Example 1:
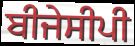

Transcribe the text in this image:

ਬੀਜੇਸੀਪੀ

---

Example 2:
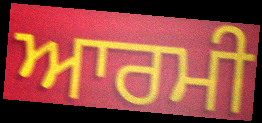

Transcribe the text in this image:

ਆਰਮੀ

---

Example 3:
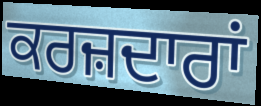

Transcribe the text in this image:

ਕਰਜ਼ਦਾਰਾਂ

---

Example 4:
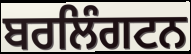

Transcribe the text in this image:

ਬਰਲਿੰਗਟਨ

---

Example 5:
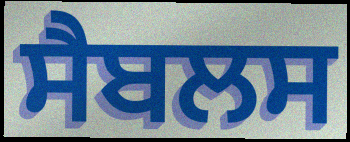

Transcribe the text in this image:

ਸੈਬਲਸ